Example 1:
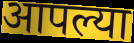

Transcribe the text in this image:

आपल्या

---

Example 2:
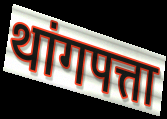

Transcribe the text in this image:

थांगपत्ता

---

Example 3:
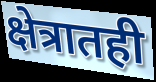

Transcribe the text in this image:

क्षेत्रातही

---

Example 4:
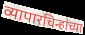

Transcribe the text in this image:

व्यापारचिन्हांच्या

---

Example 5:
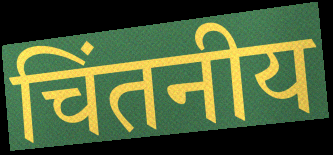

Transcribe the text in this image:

चिंतनीय